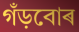
গঁড়বোৰ